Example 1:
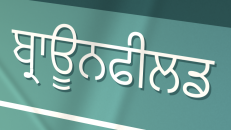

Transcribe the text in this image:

ਬ੍ਰਾਊਨਫੀਲਡ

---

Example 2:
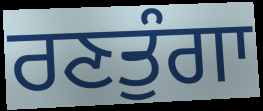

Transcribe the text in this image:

ਰਣਤੁੰਗਾ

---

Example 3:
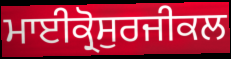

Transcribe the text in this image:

ਮਾਈਕ੍ਰੋਸੁਰਜੀਕਲ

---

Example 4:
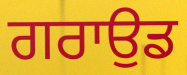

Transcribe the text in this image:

ਗਰਾਉਡ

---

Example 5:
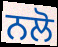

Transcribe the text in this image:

ਨਲੋ